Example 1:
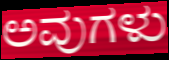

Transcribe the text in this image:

ಅವುಗಳು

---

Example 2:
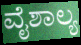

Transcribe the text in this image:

ವೈಶಾಲ್ಯ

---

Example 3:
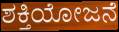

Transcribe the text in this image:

ಶಕ್ತಿಯೋಜನೆ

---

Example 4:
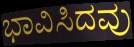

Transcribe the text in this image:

ಭಾವಿಸಿದವು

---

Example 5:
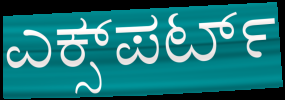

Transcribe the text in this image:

ಎಕ್ಸ್‌ಪರ್ಟ್